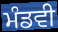
ਮੰਡਵੀ